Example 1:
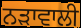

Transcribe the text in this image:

ਨੜਾਵਾਲੀ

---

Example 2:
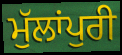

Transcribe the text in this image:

ਮੁੱਲਾਂਪੁਰੀ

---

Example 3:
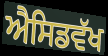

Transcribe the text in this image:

ਐਸਿਡਵੱਖ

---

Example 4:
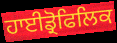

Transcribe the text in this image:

ਹਾਈਡ੍ਰੋਫਿਲਿਕ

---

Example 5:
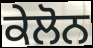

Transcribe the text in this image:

ਕੇਲੋਨ